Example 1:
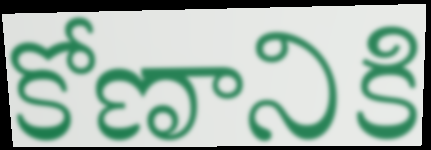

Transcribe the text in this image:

కోణానికి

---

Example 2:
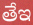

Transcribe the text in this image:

తేఇ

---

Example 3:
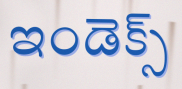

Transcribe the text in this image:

ఇండెక్స్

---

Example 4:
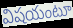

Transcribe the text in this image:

విషయంటూ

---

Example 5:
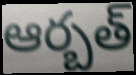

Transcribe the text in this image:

ఆర్బత్